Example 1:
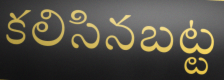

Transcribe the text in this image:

కలిసినబట్ట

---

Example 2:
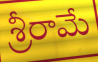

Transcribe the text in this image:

శ్రీరామే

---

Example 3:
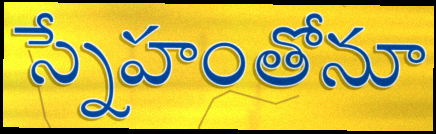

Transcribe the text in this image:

స్నేహంతోనూ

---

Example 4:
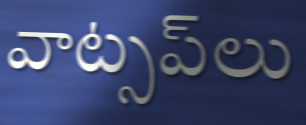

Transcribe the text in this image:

వాట్సప్‌లు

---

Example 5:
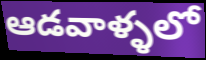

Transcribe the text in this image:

ఆడవాళ్ళలో